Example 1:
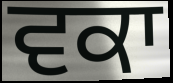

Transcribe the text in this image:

ਵਕਾ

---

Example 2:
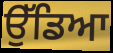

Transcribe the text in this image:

ਉੱਡਿਆ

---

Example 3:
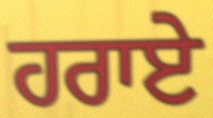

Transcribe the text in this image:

ਹਰਾਏ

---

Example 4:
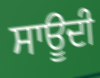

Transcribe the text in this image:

ਸਾਊਦੀ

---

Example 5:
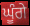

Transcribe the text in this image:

ਘੂੰਗੇ